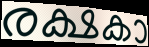
രക്ഷകാ